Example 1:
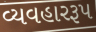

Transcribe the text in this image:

વ્યવહારરૂપ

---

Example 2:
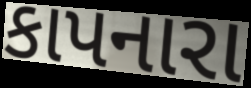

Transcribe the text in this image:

કાપનારા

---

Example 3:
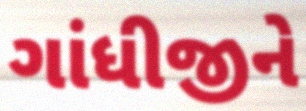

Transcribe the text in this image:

ગાંધીજીને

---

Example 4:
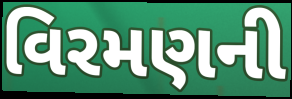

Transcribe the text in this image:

વિરમણની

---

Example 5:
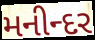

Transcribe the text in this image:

મનીન્દર